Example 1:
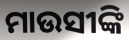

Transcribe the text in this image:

ମାଉସୀଙ୍କି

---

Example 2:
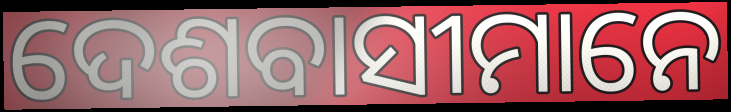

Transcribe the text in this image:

ଦେଶବାସୀମାନେ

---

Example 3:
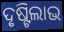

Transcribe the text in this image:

ଦୃଷ୍ଟିଲାଭ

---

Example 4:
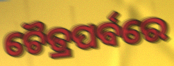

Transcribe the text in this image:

ଚୈତ୍ରପର୍ବରେ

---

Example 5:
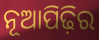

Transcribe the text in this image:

ନୂଆପିଢ଼ିର